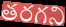
తరగని